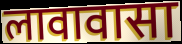
लावावासा